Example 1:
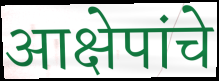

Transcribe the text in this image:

आक्षेपांचे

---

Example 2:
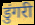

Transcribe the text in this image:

डुंगरी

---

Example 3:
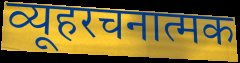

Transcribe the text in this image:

व्यूहरचनात्मक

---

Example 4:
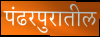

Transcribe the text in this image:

पंढरपुरातील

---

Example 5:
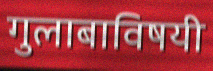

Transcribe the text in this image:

गुलाबाविषयी